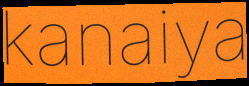
kanaiya